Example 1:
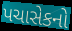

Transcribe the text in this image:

પચાસેકનો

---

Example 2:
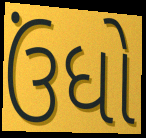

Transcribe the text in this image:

ઉંધો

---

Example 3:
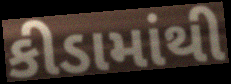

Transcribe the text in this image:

કીડામાંથી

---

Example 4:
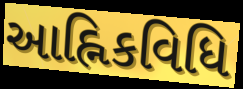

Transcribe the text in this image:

આહ્નિકવિધિ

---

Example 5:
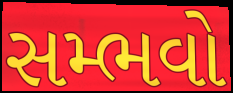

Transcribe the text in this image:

સમ્ભવો